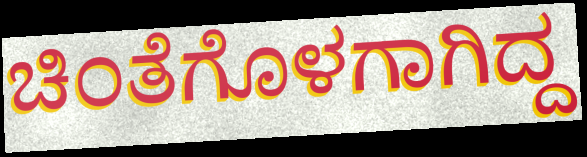
ಚಿಂತೆಗೊಳಗಾಗಿದ್ದ